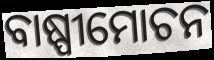
ବାଷ୍ପୀମୋଚନ